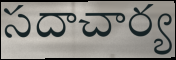
సదాచార్య